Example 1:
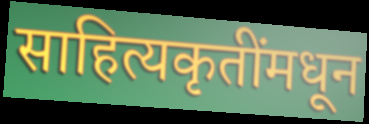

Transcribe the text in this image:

साहित्यकृतींमधून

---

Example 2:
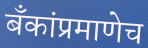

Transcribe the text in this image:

बॅंकांप्रमाणेच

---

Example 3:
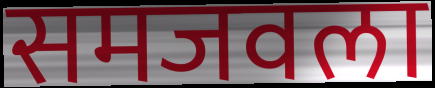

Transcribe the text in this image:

समजवला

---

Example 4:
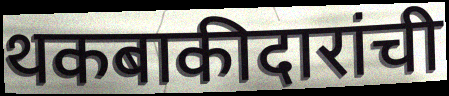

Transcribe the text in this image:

थकबाकीदारांची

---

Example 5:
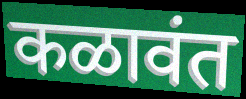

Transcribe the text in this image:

कळावंत